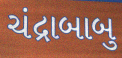
ચંદ્રાબાબુ